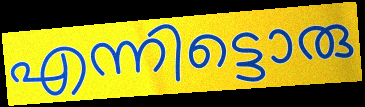
എന്നിട്ടൊരു